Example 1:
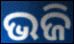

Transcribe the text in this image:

ଭଜି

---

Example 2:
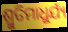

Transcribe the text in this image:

ଶ୍ରୁତିମାଧୁର୍ଯ୍ୟ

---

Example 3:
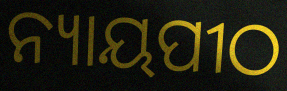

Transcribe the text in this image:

ନ୍ୟାୟପୀଠ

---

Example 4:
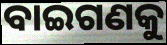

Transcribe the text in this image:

ବାଇଗଣକୁ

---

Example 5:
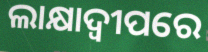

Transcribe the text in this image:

ଲାକ୍ଷାଦ୍ୱୀପରେ